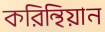
করিন্থিয়ান